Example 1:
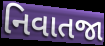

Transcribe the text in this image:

નિવાતજા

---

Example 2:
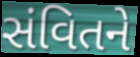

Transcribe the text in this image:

સંવિતને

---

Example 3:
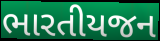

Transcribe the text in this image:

ભારતીયજન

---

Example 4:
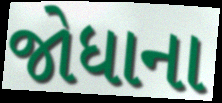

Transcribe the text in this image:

જોધાના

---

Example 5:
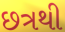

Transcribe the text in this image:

છત્રથી